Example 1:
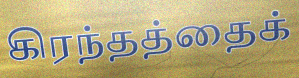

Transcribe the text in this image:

கிரந்தத்தைக்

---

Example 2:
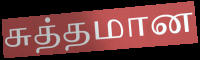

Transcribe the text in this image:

சுத்தமான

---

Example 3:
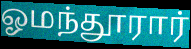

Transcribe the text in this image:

ஓமந்தூரார்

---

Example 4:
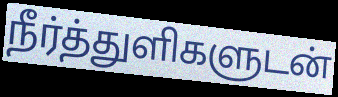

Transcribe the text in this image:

நீர்த்துளிகளுடன்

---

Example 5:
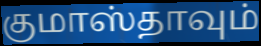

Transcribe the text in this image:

குமாஸ்தாவும்